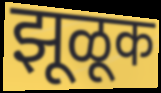
झूळूक